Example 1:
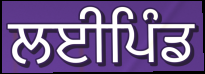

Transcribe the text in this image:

ਲਈਪਿੰਡ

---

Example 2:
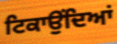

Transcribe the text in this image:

ਟਿਕਾਉਂਦਿਆਂ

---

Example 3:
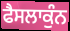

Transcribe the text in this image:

ਫੈਸਲਾਕੁੰਨ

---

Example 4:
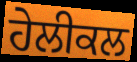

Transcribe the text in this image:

ਹੇਲੀਕਲ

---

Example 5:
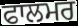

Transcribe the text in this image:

ਫਾਲਮਰ